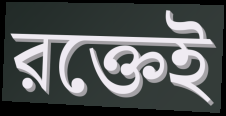
রক্তেই